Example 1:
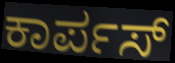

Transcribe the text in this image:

ಕಾರ್ಪಸ್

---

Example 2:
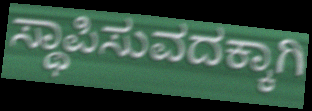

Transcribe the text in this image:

ಸ್ಥಾಪಿಸುವದಕ್ಕಾಗಿ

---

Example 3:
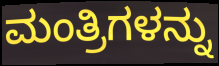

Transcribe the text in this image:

ಮಂತ್ರಿಗಳನ್ನು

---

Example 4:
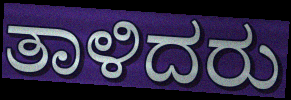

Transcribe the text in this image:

ತಾಳಿದರು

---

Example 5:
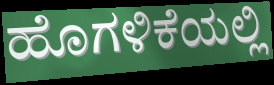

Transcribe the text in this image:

ಹೊಗಳಿಕೆಯಲ್ಲಿ